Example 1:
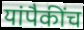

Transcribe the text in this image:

यांपैकींच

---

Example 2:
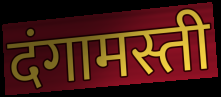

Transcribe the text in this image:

दंगामस्ती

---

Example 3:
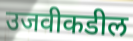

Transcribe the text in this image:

उजवीकडील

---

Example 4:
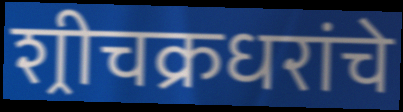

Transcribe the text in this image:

श्रीचक्रधरांचे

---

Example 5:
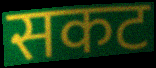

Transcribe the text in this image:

सकट